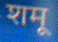
शमू